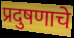
प्रदुषणाचे